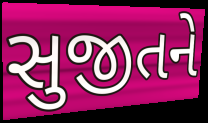
સુજીતને